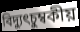
বিদ্যুৎচুম্বকীয়